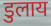
डुलाय